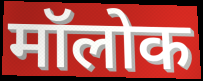
मॉलोक